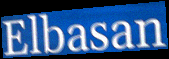
Elbasan